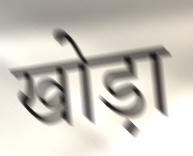
खोड़ा